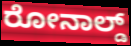
ರೋನಾಲ್ಡ್